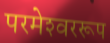
परमेश्वररूप